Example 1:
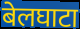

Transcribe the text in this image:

बेलघाटा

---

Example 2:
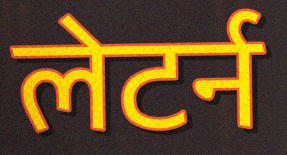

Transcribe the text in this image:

लेटर्न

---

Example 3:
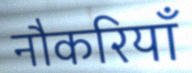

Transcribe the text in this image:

नौकरियाँ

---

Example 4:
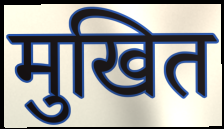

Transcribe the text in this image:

मुखित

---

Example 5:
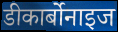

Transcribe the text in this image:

डीकार्बोनाइज